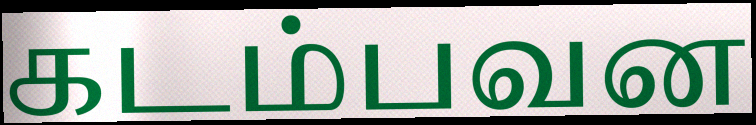
கடம்பவன